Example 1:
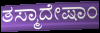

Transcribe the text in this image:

ತಸ್ಮಾದೇಷಾಂ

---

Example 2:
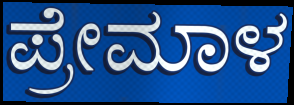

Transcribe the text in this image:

ಪ್ರೇಮಾಳ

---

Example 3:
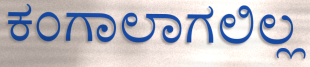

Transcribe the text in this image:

ಕಂಗಾಲಾಗಲಿಲ್ಲ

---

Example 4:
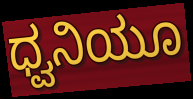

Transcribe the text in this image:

ಧ್ವನಿಯೂ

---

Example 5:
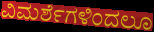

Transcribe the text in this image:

ವಿಮರ್ಶೆಗಳಿಂದಲೂ